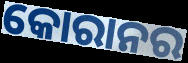
କୋରାନର